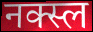
नक्स्ल